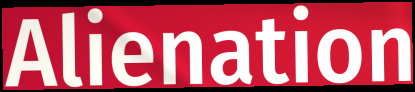
Alienation